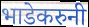
भाडेकरुनी